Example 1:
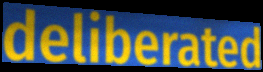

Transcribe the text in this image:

deliberated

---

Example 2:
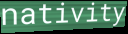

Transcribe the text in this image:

nativity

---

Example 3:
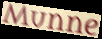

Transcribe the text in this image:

Munne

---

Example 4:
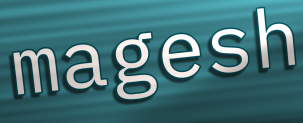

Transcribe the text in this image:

magesh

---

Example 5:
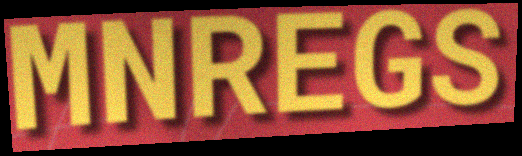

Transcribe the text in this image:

MNREGS